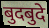
बुदबुदे